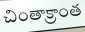
చింతాక్రాంత